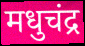
मधुचंद्र